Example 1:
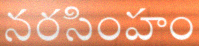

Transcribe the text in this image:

నరసింహం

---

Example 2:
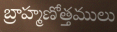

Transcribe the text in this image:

బ్రాహ్మణోత్తములు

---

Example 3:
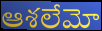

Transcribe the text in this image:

ఆశలేమో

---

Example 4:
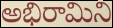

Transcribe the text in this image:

అభిరామిని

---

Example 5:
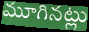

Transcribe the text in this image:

మూగినట్లు